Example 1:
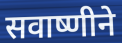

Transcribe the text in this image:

सवाष्णीने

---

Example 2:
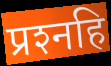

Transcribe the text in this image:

प्रश्नहि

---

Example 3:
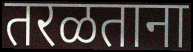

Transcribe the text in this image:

तरळताना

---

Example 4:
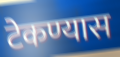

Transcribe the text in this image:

टेकण्यास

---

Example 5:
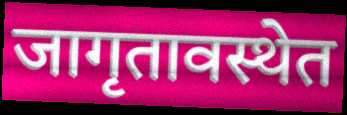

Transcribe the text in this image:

जागृतावस्थेत